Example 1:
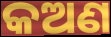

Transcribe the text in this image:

କଅଣ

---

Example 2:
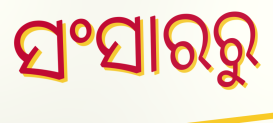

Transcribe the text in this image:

ସଂସାରରୁ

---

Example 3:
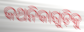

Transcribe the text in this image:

କଥନିକାଗୁଡ଼ିକୁ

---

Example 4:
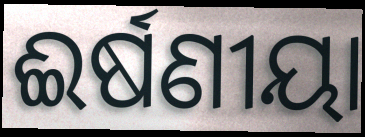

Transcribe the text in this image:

ଈର୍ଷଣୀୟା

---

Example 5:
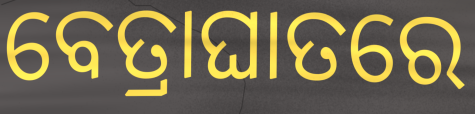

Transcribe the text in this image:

ବେତ୍ରାଘାତରେ